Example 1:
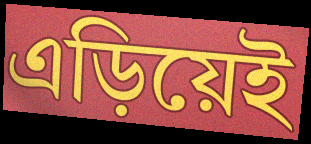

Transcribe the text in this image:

এড়িয়েই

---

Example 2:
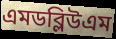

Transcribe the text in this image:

এমডব্লিউএম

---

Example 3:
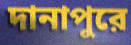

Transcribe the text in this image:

দানাপুরে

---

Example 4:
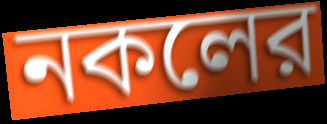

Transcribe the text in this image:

নকলের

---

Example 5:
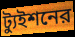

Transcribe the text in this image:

ট্যুইশনের